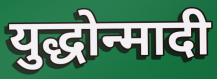
युद्धोन्मादी